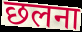
छलना